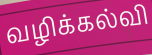
வழிக்கல்வி